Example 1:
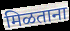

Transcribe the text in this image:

मिळताना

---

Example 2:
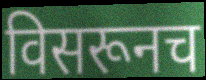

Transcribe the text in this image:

विसरूनच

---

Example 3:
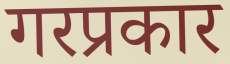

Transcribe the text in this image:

गरप्रकार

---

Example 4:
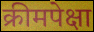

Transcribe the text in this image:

क्रीमपेक्षा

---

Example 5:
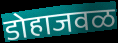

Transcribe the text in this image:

डोहाजवळ